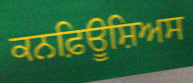
ਕਨਫ਼ਿਊਸ਼ਿਅਸ